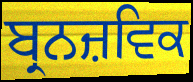
ਬ੍ਰਨਜ਼ਵਿਕ